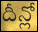
దీన్లో